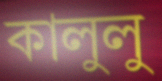
কালুলু